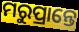
ମରୁପ୍ରାନ୍ତେ